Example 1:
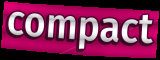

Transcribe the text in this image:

compact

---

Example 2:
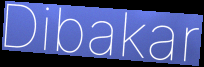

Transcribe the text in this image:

Dibakar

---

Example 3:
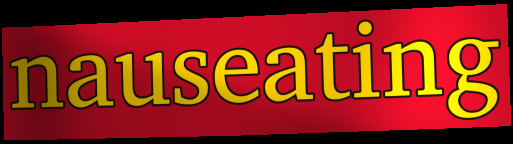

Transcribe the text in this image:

nauseating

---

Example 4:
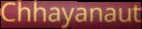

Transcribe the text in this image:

Chhayanaut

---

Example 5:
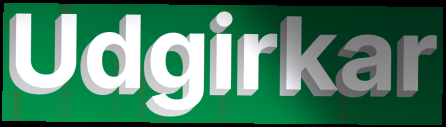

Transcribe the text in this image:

Udgirkar